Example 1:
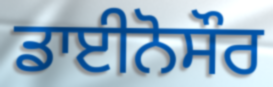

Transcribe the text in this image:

ਡਾਈਨੋਸੌਰ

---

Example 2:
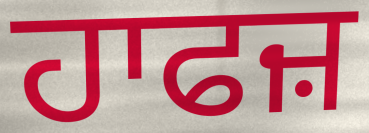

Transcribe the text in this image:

ਹਾਫਜ਼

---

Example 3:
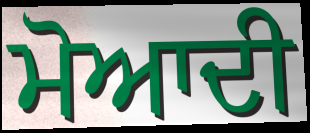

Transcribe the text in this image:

ਮੋਆਦੀ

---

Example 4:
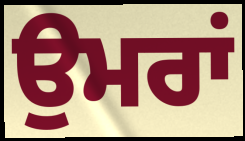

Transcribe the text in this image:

ਉਮਰਾਂ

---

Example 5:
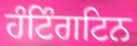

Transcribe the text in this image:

ਹੰਟਿੰਗਟਿਨ